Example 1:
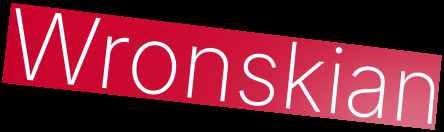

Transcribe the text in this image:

Wronskian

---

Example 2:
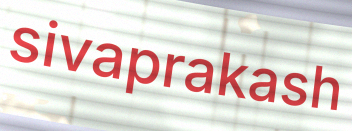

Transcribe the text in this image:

sivaprakash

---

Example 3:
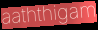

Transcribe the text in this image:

aaththigam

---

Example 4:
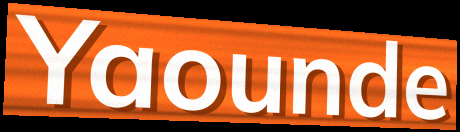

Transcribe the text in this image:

Yaounde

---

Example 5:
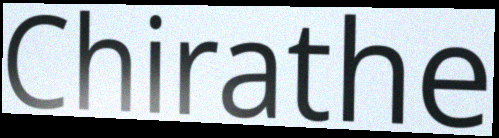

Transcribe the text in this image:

Chirathe